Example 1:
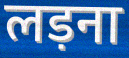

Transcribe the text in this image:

लड़ना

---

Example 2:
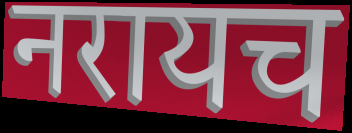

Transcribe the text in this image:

नरायच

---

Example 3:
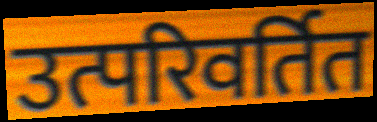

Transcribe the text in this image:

उत्परिवर्तित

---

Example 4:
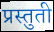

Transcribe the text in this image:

प्रस्तुती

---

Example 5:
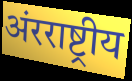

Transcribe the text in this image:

अंरराष्ट्रीय